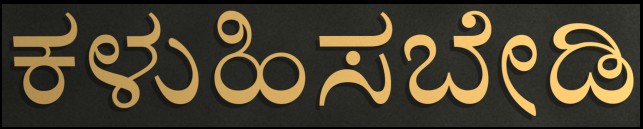
ಕಳುಹಿಸಬೇಡಿ